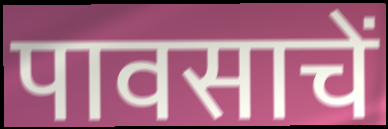
पावसाचें